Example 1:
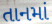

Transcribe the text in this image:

તાનમાં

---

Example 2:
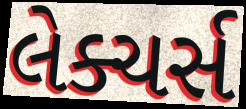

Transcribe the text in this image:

લેક્ચર્સ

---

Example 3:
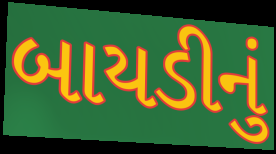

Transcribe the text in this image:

બાયડીનું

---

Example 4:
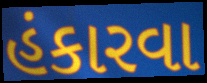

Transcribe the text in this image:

હંકારવા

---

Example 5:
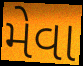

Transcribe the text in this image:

મેવા